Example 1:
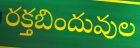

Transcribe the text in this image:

రక్తబిందువుల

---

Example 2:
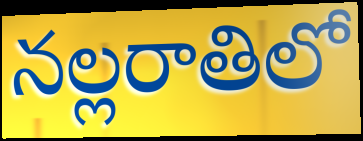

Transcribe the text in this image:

నల్లరాతిలో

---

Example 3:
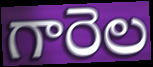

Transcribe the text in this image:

గారెల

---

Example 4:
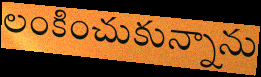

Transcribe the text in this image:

లంకించుకున్నాను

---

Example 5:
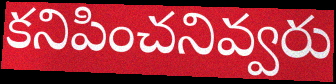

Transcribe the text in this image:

కనిపించనివ్వరు